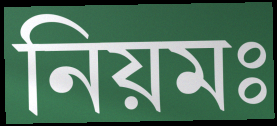
নিয়মঃ